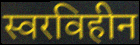
स्वरविहीन